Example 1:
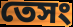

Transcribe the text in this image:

তেসং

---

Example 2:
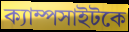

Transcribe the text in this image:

ক্যাম্পসাইটকে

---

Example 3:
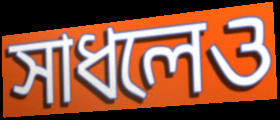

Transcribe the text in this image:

সাধলেও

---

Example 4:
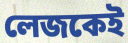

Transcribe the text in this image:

লেজকেই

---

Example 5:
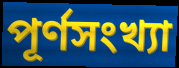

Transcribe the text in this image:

পূর্ণসংখ্যা